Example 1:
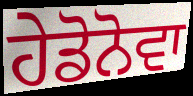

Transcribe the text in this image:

ਹੇਡੋਨੋਵਾ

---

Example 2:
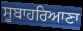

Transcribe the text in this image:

ਸੂਬਾਹਰਿਆਣਾ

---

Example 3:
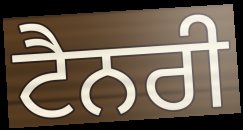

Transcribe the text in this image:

ਟੈਨਰੀ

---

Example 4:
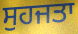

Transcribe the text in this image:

ਸੁਹਜਤਾ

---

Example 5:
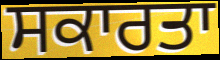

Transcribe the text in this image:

ਸਕਾਰਤਾ